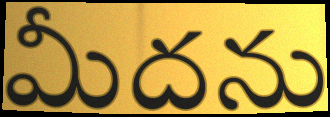
మీదను